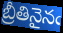
బ్రీతినైనఁ